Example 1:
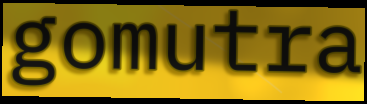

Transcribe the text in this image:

gomutra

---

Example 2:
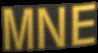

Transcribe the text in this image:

MNE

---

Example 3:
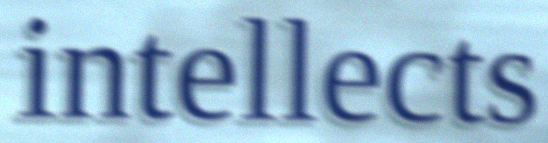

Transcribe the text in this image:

intellects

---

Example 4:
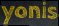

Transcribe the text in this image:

yonis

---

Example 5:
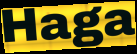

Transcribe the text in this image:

Haga